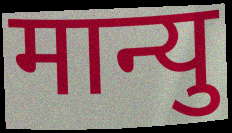
मान्यु